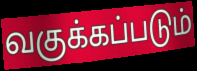
வகுக்கப்படும்